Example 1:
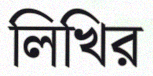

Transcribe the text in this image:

লিখির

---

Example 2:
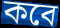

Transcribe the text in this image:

কবে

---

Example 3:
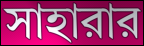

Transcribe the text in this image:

সাহারার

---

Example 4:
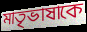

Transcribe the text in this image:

মাতৃভাষাকে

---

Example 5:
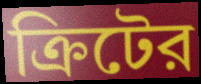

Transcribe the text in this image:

ক্রিটের